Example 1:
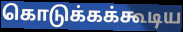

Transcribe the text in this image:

கொடுக்கக்கூடிய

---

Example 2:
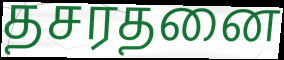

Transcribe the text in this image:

தசரதனை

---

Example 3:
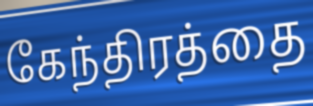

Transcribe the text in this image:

கேந்திரத்தை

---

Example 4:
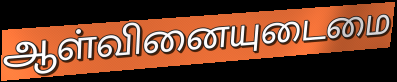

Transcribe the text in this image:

ஆள்வினையுடைமை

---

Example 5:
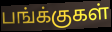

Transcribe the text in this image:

பங்க்குகள்